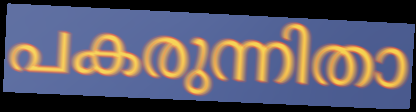
പകരുന്നിതാ